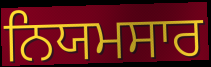
ਨਿਯਮਸਾਰ